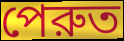
পেরুত